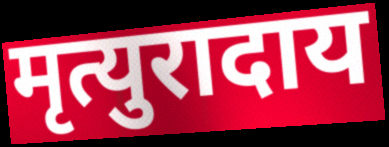
मृत्युरादाय